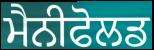
ਮੈਨੀਫੋਲਡ